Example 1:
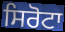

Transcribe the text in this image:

ਸਿਰੋਟਾ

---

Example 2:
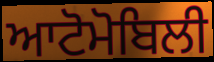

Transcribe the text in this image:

ਆਟੋਮੋਬਿਲੀ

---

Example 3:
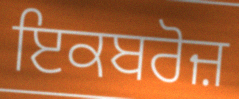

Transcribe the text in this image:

ਇਕਬਰੋਜ਼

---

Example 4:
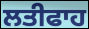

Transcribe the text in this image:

ਲਤੀਫਾਹ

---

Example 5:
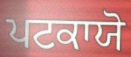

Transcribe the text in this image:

ਪਟਕਾਯੋ